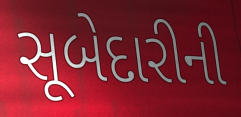
સૂબેદારીની